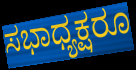
ಸಭಾಧ್ಯಕ್ಷರೂ